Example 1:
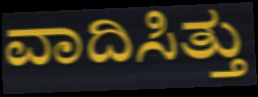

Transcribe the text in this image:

ವಾದಿಸಿತ್ತು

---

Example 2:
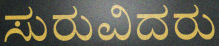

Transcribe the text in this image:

ಸುರುವಿದರು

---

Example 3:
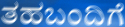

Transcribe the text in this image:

ತಹಬಂದಿಗೆ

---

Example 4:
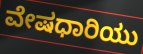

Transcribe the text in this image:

ವೇಷಧಾರಿಯು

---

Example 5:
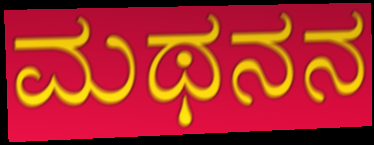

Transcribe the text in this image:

ಮಥನನ